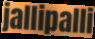
jallipalli